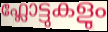
ഫ്ലോട്ടുകളും